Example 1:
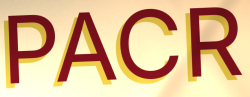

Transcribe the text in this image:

PACR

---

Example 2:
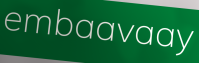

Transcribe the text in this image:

embaavaay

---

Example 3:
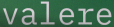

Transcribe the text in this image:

valere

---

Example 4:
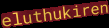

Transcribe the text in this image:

eluthukiren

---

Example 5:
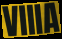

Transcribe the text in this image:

VIIIA